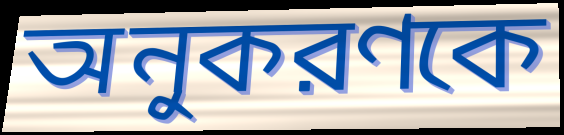
অনুকরণকে